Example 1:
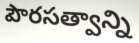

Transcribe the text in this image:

పౌరసత్వాన్ని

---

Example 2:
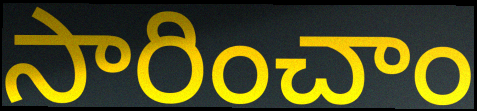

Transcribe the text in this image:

సారించాం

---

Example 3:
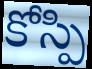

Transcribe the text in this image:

కోస్పి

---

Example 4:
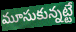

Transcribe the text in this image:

మూసుకున్నట్టే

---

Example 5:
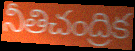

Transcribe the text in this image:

నీతిచంద్రిక